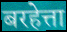
बरहेत्ता